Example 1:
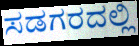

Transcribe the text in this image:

ಸಡಗರದಲ್ಲಿ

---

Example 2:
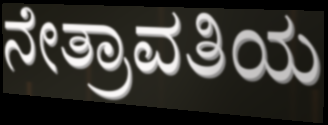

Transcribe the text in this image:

ನೇತ್ರಾವತಿಯ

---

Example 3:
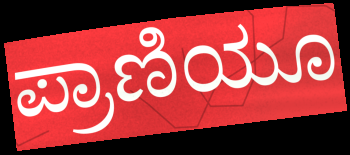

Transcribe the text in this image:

ಪ್ರಾಣಿಯೂ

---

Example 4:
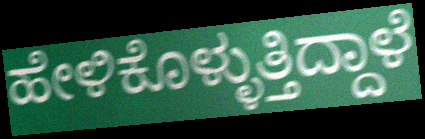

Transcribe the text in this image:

ಹೇಳಿಕೊಳ್ಳುತ್ತಿದ್ದಾಳೆ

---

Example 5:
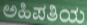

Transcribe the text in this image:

ಅಹಿಪತಿಯ